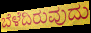
ಬೆಳೆದಿರುವುದು